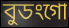
বুডংগো